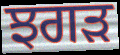
ਝਗੜ